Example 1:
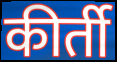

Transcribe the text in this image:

कीर्ती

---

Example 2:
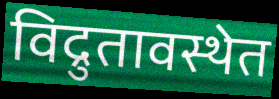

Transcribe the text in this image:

विद्रुतावस्थेत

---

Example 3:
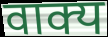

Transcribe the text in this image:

वाक्य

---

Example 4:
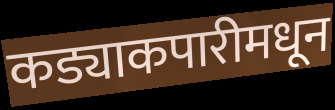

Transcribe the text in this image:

कड्याकपारीमधून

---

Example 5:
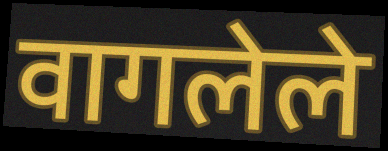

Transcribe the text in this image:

वागलेले